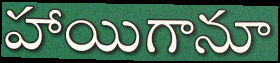
హాయిగానూ